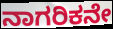
ನಾಗರಿಕನೇ